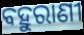
ବହୁରାଣୀ